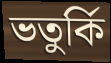
ভতুর্কি